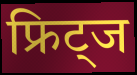
फ्रिट्ज